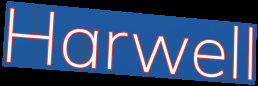
Harwell